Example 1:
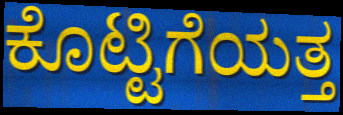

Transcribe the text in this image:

ಕೊಟ್ಟಿಗೆಯತ್ತ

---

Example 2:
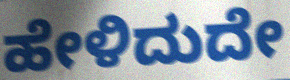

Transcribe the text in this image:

ಹೇಳಿದುದೇ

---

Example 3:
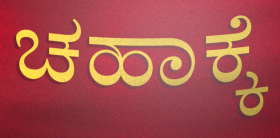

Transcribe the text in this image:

ಚಹಾಕ್ಕೆ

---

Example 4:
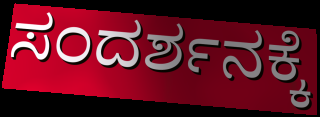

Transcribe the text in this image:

ಸಂದರ್ಶನಕ್ಕೆ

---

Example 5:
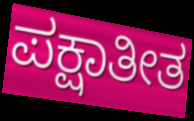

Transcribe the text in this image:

ಪಕ್ಷಾತೀತ